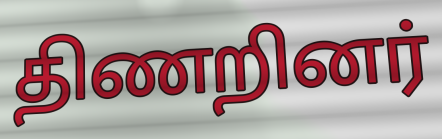
திணறினர்